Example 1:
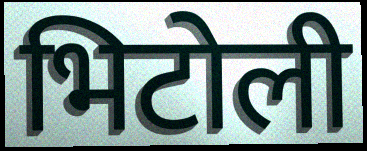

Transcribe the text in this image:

भिटोली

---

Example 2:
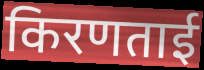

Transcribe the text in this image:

किरणताई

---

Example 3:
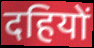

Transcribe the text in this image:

दहियों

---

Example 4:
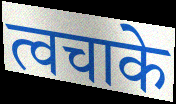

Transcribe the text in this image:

त्वचाके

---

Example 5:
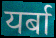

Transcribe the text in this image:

यर्बा